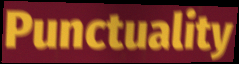
Punctuality